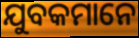
ଯୁବକମାନେ